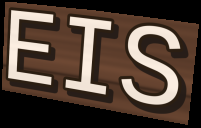
EIS